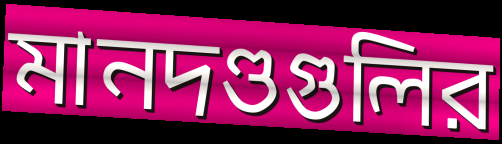
মানদণ্ডগুলির